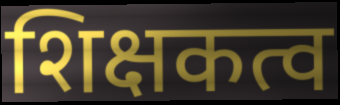
शिक्षकत्व